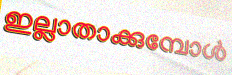
ഇല്ലാതാക്കുമ്പോൾ